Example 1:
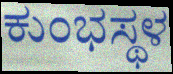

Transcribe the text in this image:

ಕುಂಭಸ್ಥಳ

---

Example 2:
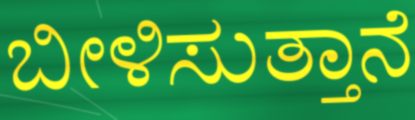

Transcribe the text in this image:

ಬೀಳಿಸುತ್ತಾನೆ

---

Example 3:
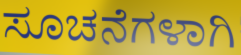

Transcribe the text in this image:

ಸೂಚನೆಗಳಾಗಿ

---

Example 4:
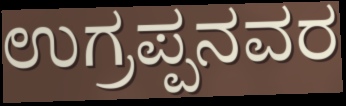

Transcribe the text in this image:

ಉಗ್ರಪ್ಪನವರ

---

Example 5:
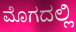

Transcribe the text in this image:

ಮೊಗದಲ್ಲಿ